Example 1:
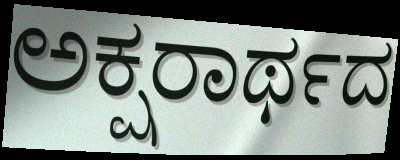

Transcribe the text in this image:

ಅಕ್ಷರಾರ್ಥದ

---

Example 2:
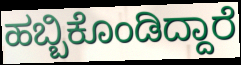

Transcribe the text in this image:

ಹಬ್ಬಿಕೊಂಡಿದ್ದಾರೆ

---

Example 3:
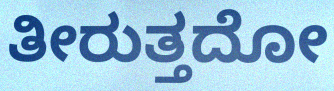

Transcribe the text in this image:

ತೀರುತ್ತದೋ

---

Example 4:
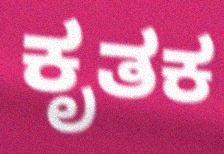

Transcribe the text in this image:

ಕೃತಕ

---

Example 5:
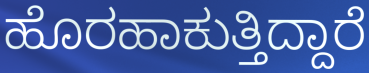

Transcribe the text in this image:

ಹೊರಹಾಕುತ್ತಿದ್ದಾರೆ